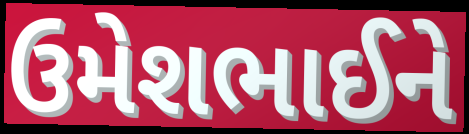
ઉમેશભાઈને